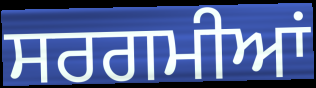
ਸਰਗਮੀਆਂ